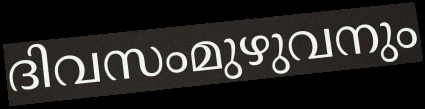
ദിവസംമുഴുവനും